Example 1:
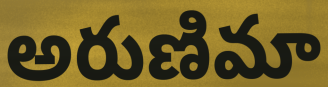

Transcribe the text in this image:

అరుణిమా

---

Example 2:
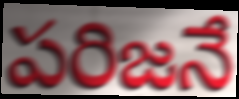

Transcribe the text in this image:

పరిజనే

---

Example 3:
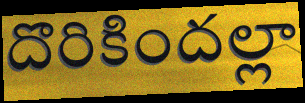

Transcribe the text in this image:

దొరికిందల్లా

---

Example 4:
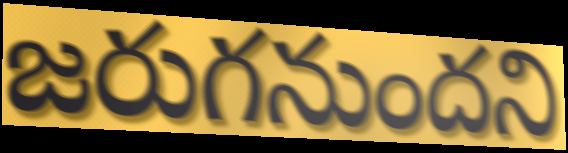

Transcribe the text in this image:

జరుగనుందని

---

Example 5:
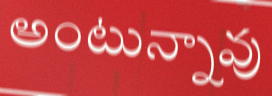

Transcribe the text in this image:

అంటున్నావు